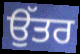
ਉੱਤਰ